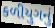
કળીયુગનું